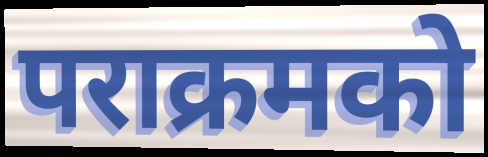
पराक्रमको